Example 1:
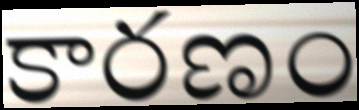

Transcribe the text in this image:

కారణం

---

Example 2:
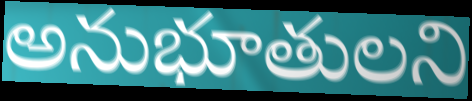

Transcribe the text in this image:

అనుభూతులని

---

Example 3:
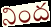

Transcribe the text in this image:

నింద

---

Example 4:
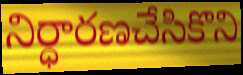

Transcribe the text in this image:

నిర్ధారణచేసికొని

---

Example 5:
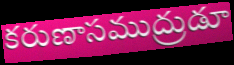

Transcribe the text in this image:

కరుణాసముద్రుడూ